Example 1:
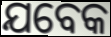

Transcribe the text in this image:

ଯବେକ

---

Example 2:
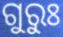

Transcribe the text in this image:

ଗୁରୁଃ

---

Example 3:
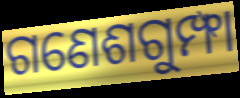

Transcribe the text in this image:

ଗଣେଶଗୁମ୍ଫା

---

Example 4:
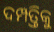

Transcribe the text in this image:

ଦମ୍ପତ୍ତିକୁ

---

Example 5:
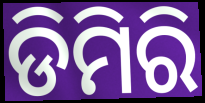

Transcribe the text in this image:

ଡିମିରି